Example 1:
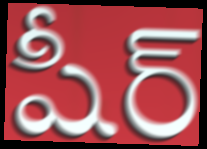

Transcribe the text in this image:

షీర్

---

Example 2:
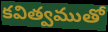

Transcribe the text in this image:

కవిత్వముతో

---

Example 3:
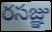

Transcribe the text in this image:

రసజ్ఞు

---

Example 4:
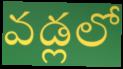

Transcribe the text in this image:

వడ్లలో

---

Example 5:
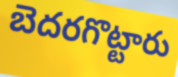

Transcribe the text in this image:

బెదరగొట్టారు